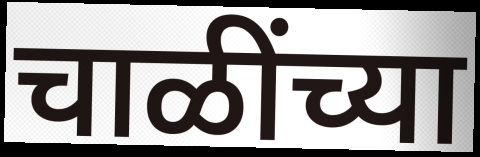
चाळींच्या